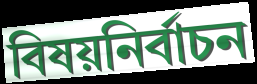
বিষয়নির্বাচন